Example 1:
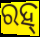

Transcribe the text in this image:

ରହ୍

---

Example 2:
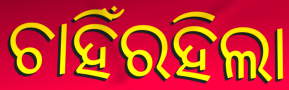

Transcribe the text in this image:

ଚାହିଁରହିଲା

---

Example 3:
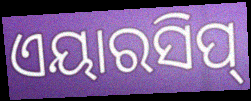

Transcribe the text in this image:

ଏୟାରସିପ୍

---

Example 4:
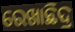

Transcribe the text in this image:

ରେଖାଛିଦ୍ର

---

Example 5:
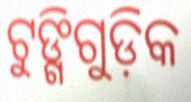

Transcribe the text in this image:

ଟୁଙ୍ଗିଗୁଡ଼ିକ